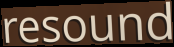
resound